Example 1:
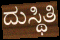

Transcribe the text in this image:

ದುಸ್ಥಿತಿ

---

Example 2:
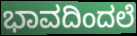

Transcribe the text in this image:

ಭಾವದಿಂದಲೆ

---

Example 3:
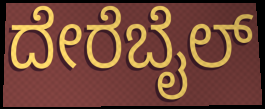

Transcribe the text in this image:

ದೇರೆಬೈಲ್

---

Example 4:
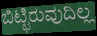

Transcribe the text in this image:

ಬಿಟ್ಟಿರುವುದಿಲ್ಲ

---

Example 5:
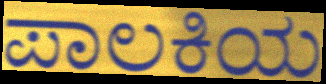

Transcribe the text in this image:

ಪಾಲಕಿಯ